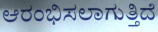
ಆರಂಭಿಸಲಾಗುತ್ತಿದೆ